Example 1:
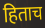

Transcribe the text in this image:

हिताच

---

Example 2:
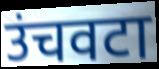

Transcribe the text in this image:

उंचवटा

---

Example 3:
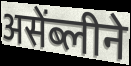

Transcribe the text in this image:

असेंब्लीने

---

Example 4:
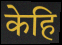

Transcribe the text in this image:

केहि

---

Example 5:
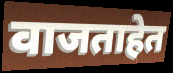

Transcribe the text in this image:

वाजताहेत